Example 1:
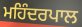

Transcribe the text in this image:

ਮਹਿੰਦਰਪਾਲ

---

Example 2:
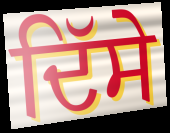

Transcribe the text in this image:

ਦਿੱਸੇ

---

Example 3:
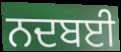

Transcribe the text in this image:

ਨਦਬਈ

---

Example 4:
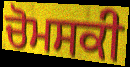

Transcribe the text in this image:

ਚੋਮਸਕੀ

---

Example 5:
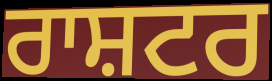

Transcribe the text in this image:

ਰਾਸ਼ਟਰ